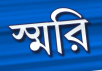
স্মরি